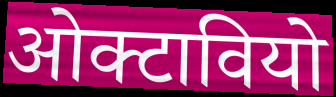
ओक्टावियो